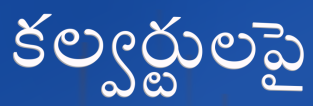
కల్వర్టులపై